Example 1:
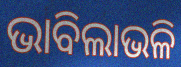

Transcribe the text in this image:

ଭାବିଲାଭଳି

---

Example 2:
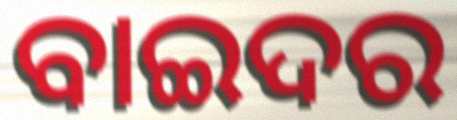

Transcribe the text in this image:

ବାଇଦର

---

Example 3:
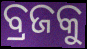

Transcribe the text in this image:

ବ୍ରଜକୁ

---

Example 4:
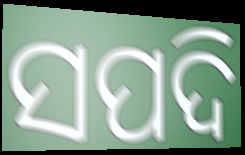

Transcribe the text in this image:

ସପଦି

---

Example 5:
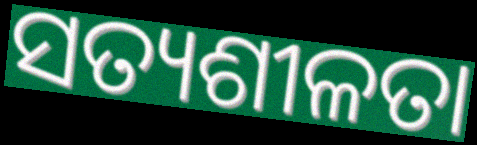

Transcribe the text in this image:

ସତ୍ୟଶୀଳତା